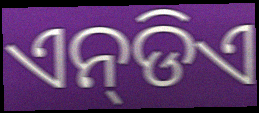
ଏନ୍‌ଡିଏ